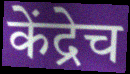
केंद्रेच